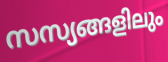
സസ്യങ്ങളിലും